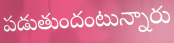
పడుతుందంటున్నారు